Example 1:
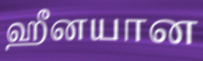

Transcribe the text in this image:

ஹீனயான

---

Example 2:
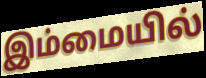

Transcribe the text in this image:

இம்மையில்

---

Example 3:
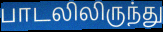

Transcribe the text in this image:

பாடலிலிருந்து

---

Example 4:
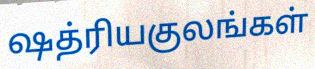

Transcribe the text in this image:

ஷத்ரியகுலங்கள்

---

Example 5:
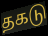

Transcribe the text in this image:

தகடு